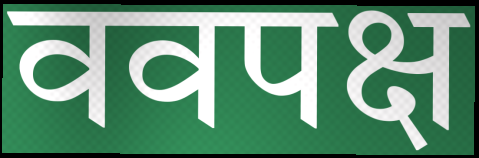
ववपक्ष